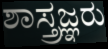
ಶಾಸ್ತ್ರಜ್ಞರು